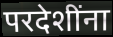
परदेशींना